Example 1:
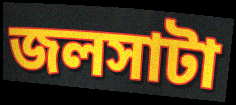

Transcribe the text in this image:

জলসাটা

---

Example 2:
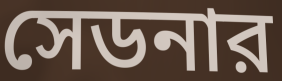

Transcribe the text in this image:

সেডনার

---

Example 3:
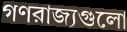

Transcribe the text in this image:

গণরাজ্যগুলো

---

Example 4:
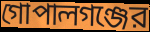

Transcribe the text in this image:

গোপালগঞ্জের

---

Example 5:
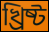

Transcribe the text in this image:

খ্রিষ্ট